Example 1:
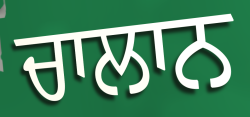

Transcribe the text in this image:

ਚਾਲਾਨ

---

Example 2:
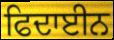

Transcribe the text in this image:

ਫਿਦਾਈਨ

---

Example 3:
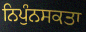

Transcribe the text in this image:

ਨਿਪੁੰਨਸਕਤਾ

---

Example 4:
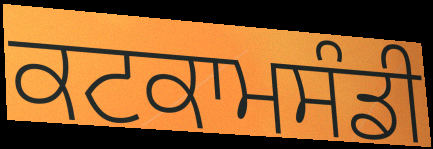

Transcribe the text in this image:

ਕਟਕਾਮਸੰਡੀ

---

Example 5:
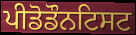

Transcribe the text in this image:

ਪੀਡੋਡੌਨਟਿਸਟ